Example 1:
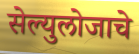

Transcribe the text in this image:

सेल्युलोजाचे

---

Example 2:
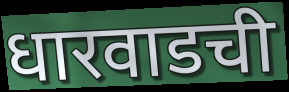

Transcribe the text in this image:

धारवाडची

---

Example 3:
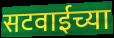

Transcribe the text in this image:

सटवाईच्या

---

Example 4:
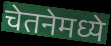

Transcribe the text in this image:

चेतनेमध्ये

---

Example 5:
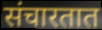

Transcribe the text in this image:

संचारतात